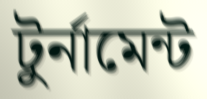
টুর্নামেন্ট